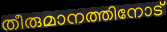
തീരുമാനത്തിനോട്